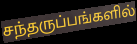
சந்தருப்பங்களில்